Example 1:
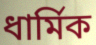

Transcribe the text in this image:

ধাৰ্মিক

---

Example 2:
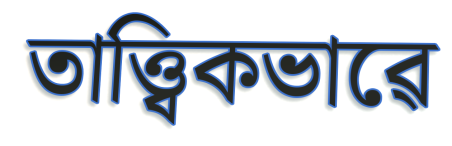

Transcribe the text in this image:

তাত্ত্বিকভাৱে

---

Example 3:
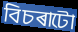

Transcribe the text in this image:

বিচৰাটো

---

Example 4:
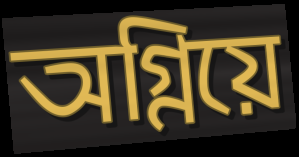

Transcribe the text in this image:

অগ্নিয়ে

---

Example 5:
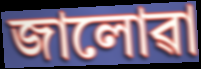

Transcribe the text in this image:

জালোৱা